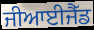
ਜੀਆਈਜੈੱਡ